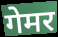
गेमर